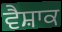
ਵੈਸ਼ਾਕ